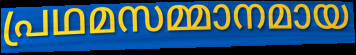
പ്രഥമസമ്മാനമായ